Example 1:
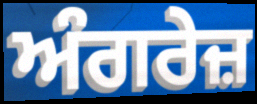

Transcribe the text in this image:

ਅੰਗਰੇਜ਼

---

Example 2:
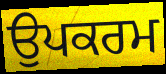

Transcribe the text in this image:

ਉਪਕਰਮ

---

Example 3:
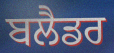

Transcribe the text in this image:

ਬਲੈਡਰ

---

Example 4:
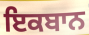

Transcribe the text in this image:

ਇਕਬਾਨ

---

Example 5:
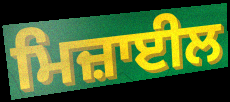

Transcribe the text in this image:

ਮਿਜ਼ਾਈਲ